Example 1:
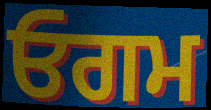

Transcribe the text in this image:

ਓਗਮ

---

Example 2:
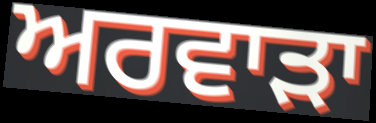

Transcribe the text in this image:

ਅਰਵਾੜਾ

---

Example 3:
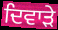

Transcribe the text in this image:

ਦਿਵਾੜੇ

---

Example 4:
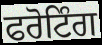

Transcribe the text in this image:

ਫਰੋਟਿੰਗ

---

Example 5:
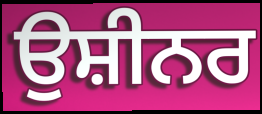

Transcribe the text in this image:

ਉਸ਼ੀਨਰ